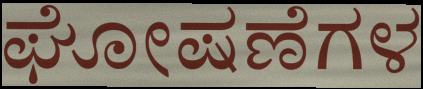
ಘೋಷಣೆಗಳ